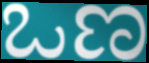
ಒಣ